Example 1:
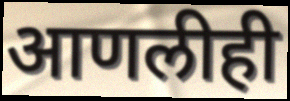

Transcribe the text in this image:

आणलीही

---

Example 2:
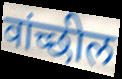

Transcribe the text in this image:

वांच्छील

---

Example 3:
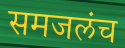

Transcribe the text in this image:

समजलंच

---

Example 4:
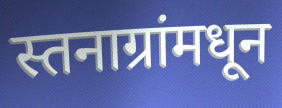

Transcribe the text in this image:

स्तनाग्रांमधून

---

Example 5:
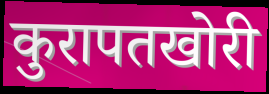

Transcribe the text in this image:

कुरापतखोरी